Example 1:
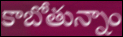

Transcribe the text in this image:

కాబోతున్నాం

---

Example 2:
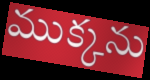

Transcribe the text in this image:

ముక్కను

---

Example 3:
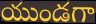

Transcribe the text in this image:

యుండగా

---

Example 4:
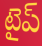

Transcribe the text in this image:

టైప్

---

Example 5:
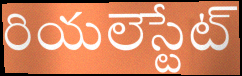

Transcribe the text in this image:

రియలెస్టేట్